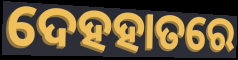
ଦେହହାତରେ